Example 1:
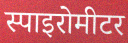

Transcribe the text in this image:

स्पाइरोमीटर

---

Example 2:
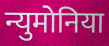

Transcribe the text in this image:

न्युमोनिया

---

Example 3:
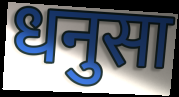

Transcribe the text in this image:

धनुसा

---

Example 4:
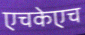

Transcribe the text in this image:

एचकेएच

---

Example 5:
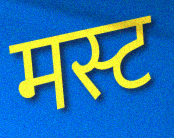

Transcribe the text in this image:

मस्‍ट